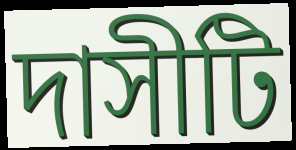
দাসীটি